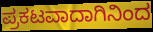
ಪ್ರಕಟವಾದಾಗಿನಿಂದ